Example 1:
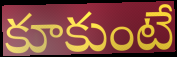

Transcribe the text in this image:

కూకుంటే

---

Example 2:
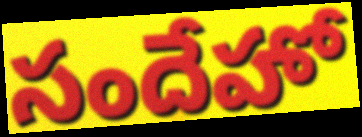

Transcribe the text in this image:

సందేహో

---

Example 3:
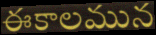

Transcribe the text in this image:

ఈకాలమున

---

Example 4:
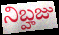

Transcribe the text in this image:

నిబ్హజు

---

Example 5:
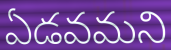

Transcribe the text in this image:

ఏడవమని